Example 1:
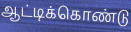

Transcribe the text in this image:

ஆட்டிக்கொண்டு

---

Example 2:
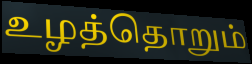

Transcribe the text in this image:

உழத்தொறும்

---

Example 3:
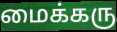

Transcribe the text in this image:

மைக்கரு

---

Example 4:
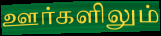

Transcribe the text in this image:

ஊர்களிலும்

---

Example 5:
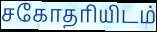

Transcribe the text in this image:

சகோதரியிடம்